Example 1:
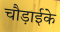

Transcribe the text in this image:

चौड़ाईके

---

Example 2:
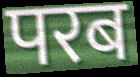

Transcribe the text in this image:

परब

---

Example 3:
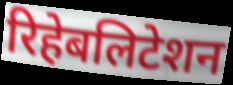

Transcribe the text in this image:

रिहेबलिटेशन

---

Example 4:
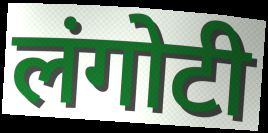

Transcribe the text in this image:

लंगोटी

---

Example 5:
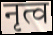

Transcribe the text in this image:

नृत्व